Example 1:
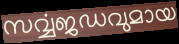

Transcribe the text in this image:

സൎവ്വജഡവുമായ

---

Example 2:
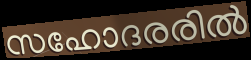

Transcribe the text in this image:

സഹോദരരിൽ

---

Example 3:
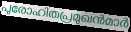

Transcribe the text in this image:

പുരോഹിതപ്രമുഖൻമാർ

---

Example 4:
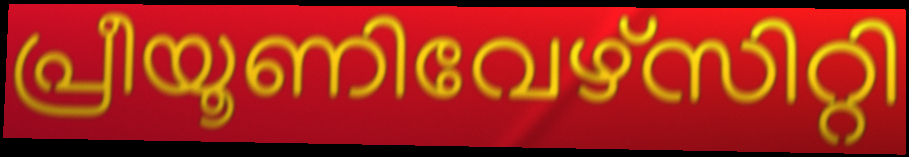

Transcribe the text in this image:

പ്രീയൂണിവേഴ്സിറ്റി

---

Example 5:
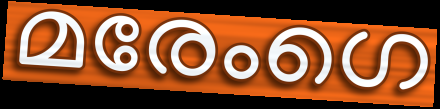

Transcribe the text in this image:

മരേംഗെ